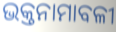
ଭକ୍ତନାମାବଳୀ